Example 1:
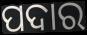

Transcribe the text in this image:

ପଦାର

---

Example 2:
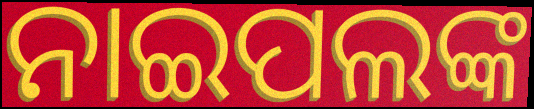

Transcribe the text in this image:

ନାଇପଲଙ୍କ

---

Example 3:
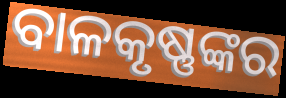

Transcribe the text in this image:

ବାଳକୃଷ୍ଣଙ୍କର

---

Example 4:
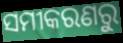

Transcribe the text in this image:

ସମୀକରଣରୁ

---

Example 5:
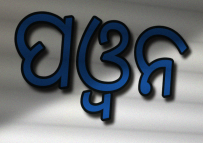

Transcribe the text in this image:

ପଓ୍ବନ